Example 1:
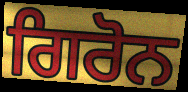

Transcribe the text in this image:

ਗਿਰੋਨ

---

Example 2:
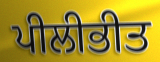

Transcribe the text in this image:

ਪੀਲੀਭੀਤ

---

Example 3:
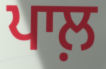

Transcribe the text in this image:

ਪਾਲ਼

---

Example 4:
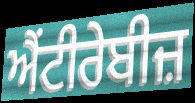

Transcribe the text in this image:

ਐਂਟੀਰੇਬੀਜ਼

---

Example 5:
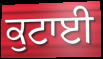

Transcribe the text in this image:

ਕੁਟਾਈ